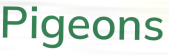
Pigeons